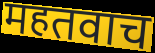
महतवाच